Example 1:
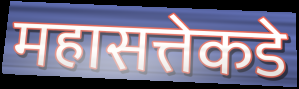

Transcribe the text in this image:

महासत्तेकडे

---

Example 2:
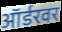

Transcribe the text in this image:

ऑर्डरवर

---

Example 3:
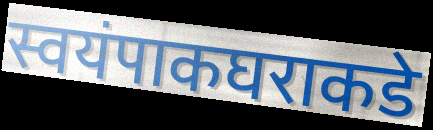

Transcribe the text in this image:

स्वयंपाकघराकडे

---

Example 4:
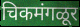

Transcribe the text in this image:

चिकमंगळूर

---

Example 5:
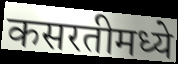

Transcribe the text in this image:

कसरतीमध्ये